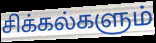
சிக்கல்களும்